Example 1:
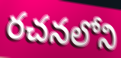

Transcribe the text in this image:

రచనలోని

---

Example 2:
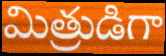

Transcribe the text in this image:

మిత్రుడిగా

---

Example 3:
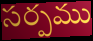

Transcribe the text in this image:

సర్పము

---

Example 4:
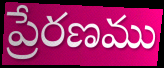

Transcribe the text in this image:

ప్రేరణము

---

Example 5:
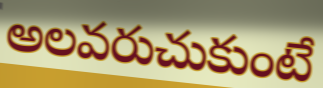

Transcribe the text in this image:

అలవరుచుకుంటే